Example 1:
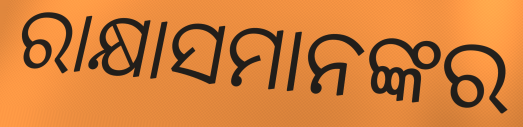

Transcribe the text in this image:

ରାକ୍ଷାସମାନଙ୍କର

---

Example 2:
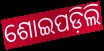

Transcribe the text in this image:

ଶୋଇପଡ଼ିଲି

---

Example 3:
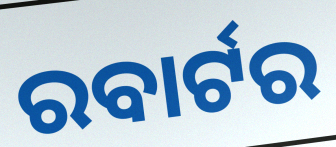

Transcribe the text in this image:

ରବାର୍ଟର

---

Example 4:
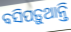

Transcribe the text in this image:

ବସିପଡ଼ୁଥାନ୍ତି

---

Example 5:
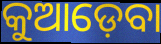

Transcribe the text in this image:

କୁଆଡ଼େବା